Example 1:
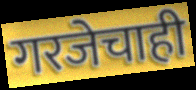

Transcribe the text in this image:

गरजेचाही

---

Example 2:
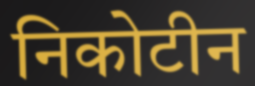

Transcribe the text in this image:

निकोटीन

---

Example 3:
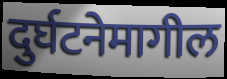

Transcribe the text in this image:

दुर्घटनेमागील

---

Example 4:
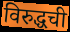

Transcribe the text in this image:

विरुद्धची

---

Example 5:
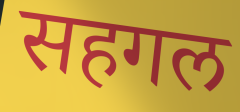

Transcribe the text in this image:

सहगल